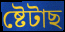
ষ্টেটাছ